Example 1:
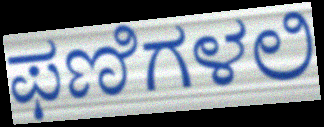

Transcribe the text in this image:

ಫಣಿಗಳಲಿ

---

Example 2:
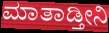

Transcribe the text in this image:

ಮಾತಾಡ್ತೀನಿ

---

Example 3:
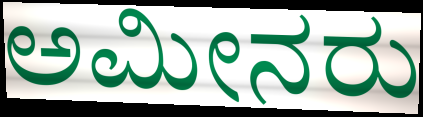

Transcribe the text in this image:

ಅಮೀನರು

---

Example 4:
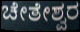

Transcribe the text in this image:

ಚೇತೇಶ್ವರ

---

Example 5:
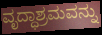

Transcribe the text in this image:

ವೃದ್ಧಾಶ್ರಮವನ್ನು